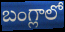
బంగ్లాలో